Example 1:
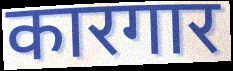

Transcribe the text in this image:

कारगार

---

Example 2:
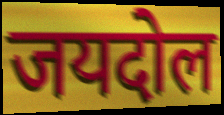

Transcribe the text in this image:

जयदोल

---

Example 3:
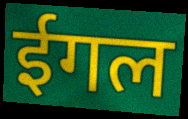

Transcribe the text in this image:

ईगल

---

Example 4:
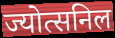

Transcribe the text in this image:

ज्योत्सनिल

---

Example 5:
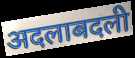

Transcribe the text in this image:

अदलाबदली